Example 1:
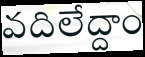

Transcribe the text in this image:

వదిలేద్దాం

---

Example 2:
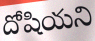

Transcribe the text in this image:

దోషియని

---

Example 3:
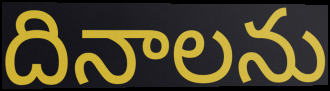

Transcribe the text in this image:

దినాలను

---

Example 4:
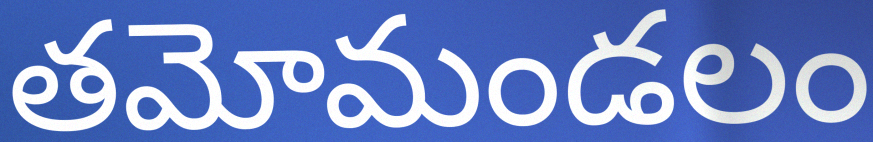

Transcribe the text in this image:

తమోమండలం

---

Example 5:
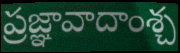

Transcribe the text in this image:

ప్రజ్ఞావాదాంశ్చ